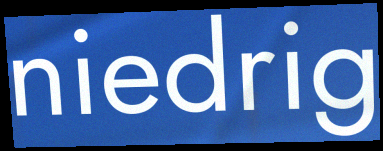
niedrig